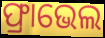
ଫ୍ରାଭେଲ